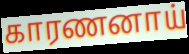
காரணனாய்